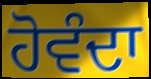
ਹੋਵੰਦਾ